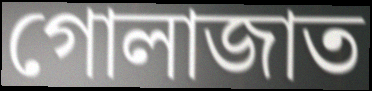
গোলাজাত